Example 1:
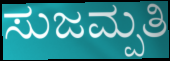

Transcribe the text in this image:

ಸುಜಮ್ಪತಿ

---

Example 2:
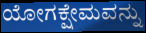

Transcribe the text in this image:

ಯೋಗಕ್ಷೇಮವನ್ನು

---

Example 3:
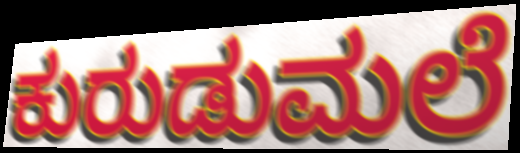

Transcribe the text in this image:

ಕುರುಡುಮಲೆ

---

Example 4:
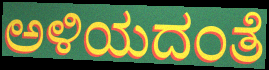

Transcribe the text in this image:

ಅಳಿಯದಂತೆ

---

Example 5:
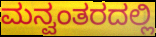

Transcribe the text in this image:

ಮನ್ವಂತರದಲ್ಲಿ